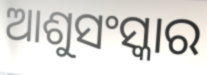
ଆଶୁସଂସ୍କାର